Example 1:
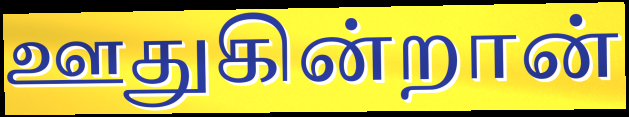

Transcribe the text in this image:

ஊதுகின்றான்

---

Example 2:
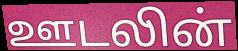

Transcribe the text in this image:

ஊடலின்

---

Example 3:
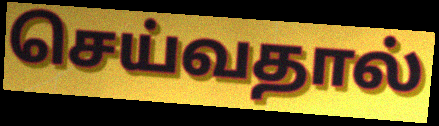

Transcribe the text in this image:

செய்வதால்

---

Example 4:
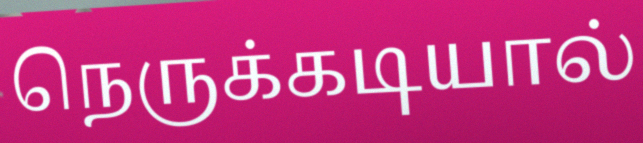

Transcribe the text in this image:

நெருக்கடியால்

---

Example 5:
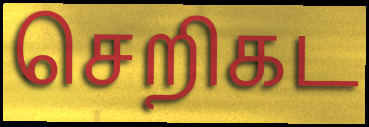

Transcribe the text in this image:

செறிகட